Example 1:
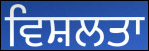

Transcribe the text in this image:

ਵਿਸ਼ਲਤਾ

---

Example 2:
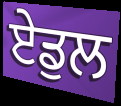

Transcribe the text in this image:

ਏਡੁਲ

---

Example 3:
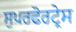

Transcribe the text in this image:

ਸੁਪਰਫੋਰਟ੍ਰੇਸ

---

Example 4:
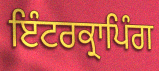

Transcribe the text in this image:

ਇੰਟਰਕ੍ਰਾਪਿੰਗ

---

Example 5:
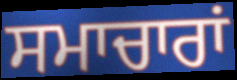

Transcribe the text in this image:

ਸਮਾਚਾਰਾਂ